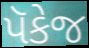
પૅકેજ